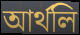
আর্থলি